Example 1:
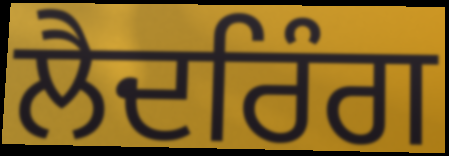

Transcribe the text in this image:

ਲੈਦਰਿੰਗ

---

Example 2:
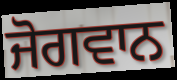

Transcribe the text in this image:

ਜੋਗਵਾਨ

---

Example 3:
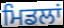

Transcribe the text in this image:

ਮਿਡਲਾਂ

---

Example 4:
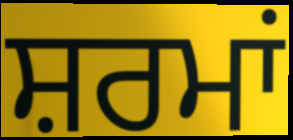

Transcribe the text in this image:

ਸ਼ਰਮਾਂ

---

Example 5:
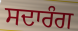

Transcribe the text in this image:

ਸਦਾਰੰਗ